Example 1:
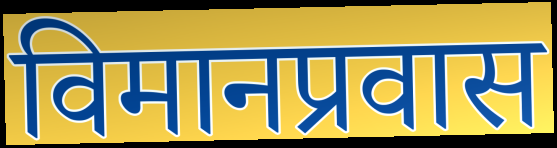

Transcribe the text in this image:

विमानप्रवास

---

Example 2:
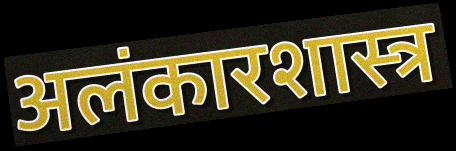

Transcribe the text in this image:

अलंकारशास्त्र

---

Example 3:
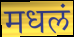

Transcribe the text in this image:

मधलं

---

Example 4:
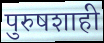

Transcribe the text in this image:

पुरुषशाही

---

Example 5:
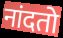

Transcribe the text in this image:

नांदतो